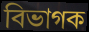
বিভাগক